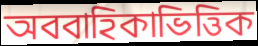
অববাহিকাভিত্তিক